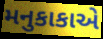
મનુકાકાએ